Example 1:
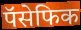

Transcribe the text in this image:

पॅसेफिक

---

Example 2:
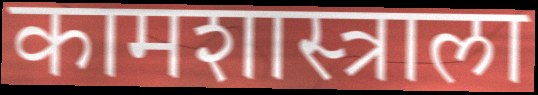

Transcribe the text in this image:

कामशास्त्राला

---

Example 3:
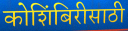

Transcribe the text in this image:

कोशिंबिरीसाठी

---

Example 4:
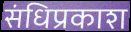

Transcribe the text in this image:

संधिप्रकाश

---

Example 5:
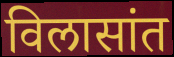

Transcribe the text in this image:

विलासांत